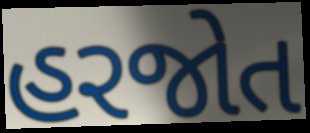
હરજોત